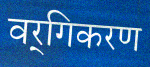
वर्गिकरण